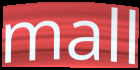
mall